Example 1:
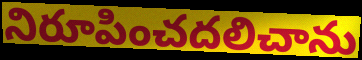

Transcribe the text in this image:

నిరూపించదలిచాను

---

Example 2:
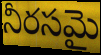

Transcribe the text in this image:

నీరసమై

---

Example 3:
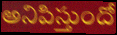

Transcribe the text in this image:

అనిపిస్తుందో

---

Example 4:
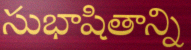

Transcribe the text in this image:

సుభాషితాన్ని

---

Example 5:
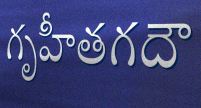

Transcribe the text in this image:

గృహీతగదౌ